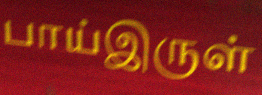
பாய்இருள்